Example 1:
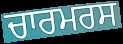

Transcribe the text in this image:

ਚਾਰਮਰਸ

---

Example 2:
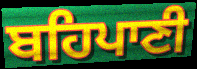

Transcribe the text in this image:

ਬਹਿਪਾਣੀ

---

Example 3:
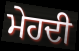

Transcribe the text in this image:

ਮੇਹਦੀ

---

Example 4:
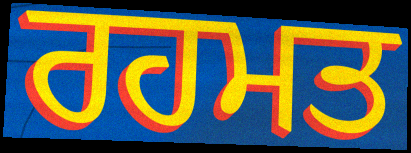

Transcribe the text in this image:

ਰਹਮਤ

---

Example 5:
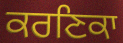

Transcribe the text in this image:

ਕਰਣਿਕਾ